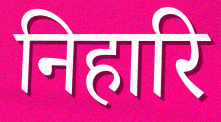
निहारि